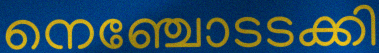
നെഞ്ചോടടക്കി